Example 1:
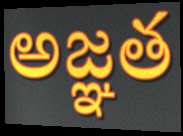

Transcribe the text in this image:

అజ్ఞత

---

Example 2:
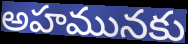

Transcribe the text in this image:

అహమునకు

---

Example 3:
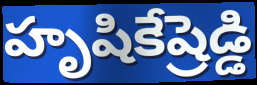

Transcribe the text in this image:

హృషికేష్రెడ్డి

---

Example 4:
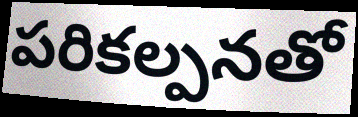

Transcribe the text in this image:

పరికల్పనతో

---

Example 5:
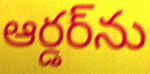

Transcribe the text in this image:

ఆర్డర్‌ను